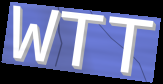
WTT